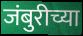
जंबुरीच्या